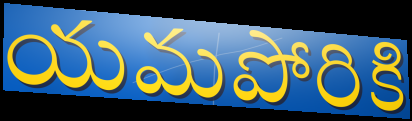
యమపోరికి